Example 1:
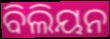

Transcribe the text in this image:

ବିଲିୟନ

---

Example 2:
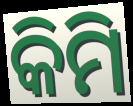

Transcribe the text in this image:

କିମି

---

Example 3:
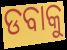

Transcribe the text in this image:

ଡବାକୁ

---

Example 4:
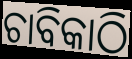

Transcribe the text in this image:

ଚାବିକାଠି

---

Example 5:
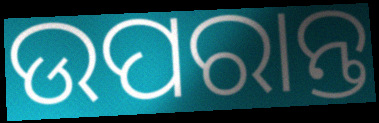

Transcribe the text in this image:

ଉପରାନ୍ତ